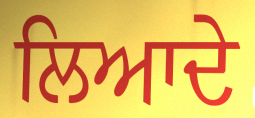
ਲਿਆਦੇ